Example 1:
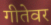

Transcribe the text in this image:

गीतेवर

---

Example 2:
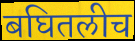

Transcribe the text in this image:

बघितलीच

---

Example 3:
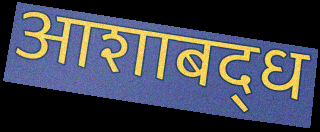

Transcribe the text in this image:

आशाबद्ध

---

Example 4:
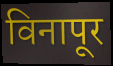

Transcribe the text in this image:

विनापूर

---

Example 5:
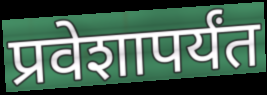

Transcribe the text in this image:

प्रवेशापर्यंत